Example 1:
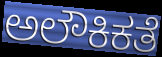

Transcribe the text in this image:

ಅಲೌಕಿಕತೆ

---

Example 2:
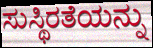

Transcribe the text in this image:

ಸುಸ್ಥಿರತೆಯನ್ನು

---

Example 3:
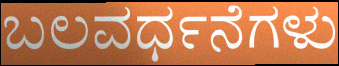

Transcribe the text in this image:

ಬಲವರ್ಧನೆಗಳು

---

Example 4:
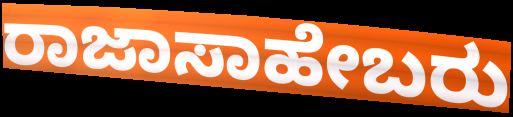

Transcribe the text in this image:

ರಾಜಾಸಾಹೇಬರು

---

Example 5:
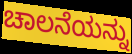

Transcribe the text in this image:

ಚಾಲನೆಯನ್ನು